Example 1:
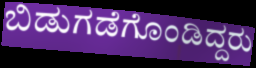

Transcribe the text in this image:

ಬಿಡುಗಡೆಗೊಂಡಿದ್ದರು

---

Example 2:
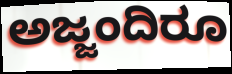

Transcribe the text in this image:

ಅಜ್ಜಂದಿರೂ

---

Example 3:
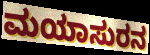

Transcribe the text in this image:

ಮಯಾಸುರನ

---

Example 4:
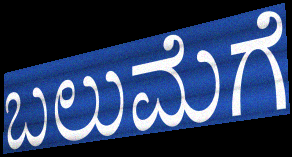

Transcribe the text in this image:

ಬಲುಮೆಗೆ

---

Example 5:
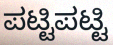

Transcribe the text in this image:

ಪಟ್ಟಿಪಟ್ಟಿ